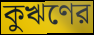
কুঋণের